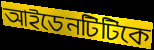
আইডেনটিটিকে